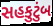
સહકુટુંબ